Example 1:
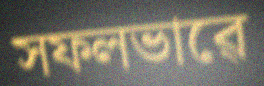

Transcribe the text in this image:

সফলভাৱে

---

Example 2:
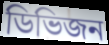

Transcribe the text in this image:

ডিভিজন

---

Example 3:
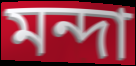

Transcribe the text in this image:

মন্দা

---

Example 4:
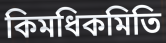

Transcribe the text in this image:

কিমধিকমিতি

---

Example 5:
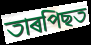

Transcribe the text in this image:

তাৰপিছত